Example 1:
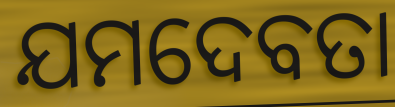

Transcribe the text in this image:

ଯମଦେବତା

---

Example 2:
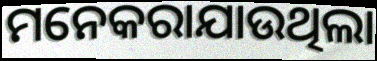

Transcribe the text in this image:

ମନେକରାଯାଉଥିଲା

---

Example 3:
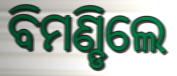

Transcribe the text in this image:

ବିମଣ୍ଡିଲେ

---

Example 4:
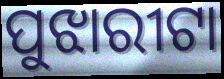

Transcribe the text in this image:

ପୁଝାରୀଟା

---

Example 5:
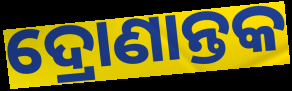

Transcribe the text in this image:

ଦ୍ରୋଣାନ୍ତକ